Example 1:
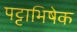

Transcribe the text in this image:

पट्टाभिषेक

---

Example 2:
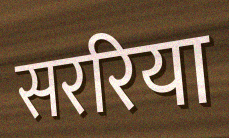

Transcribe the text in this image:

सररिया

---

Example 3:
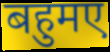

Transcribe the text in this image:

बहुमए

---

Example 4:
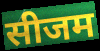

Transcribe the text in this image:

सीजम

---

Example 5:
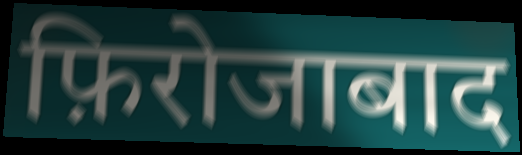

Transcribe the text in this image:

फ़िरोजाबाद